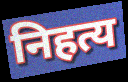
निहत्य